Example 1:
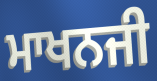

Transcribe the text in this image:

ਮਾਖਨਜੀ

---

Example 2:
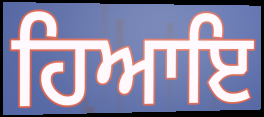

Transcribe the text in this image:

ਹਿਆਇ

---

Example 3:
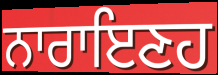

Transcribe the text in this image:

ਨਾਰਾਇਣਹ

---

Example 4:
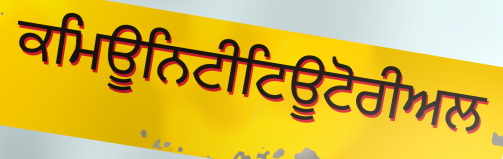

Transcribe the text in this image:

ਕਮਿਊਨਿਟੀਟਿਊਟੋਰੀਅਲ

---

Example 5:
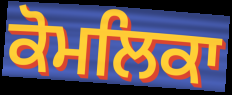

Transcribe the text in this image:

ਕੋਮਲਿਕਾ